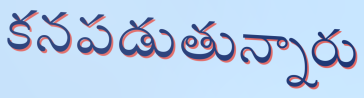
కనపడుతున్నారు